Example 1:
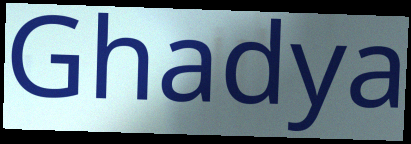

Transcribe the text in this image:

Ghadya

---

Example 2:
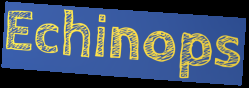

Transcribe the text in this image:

Echinops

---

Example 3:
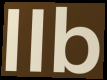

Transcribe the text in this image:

IIb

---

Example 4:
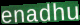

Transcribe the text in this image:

enadhu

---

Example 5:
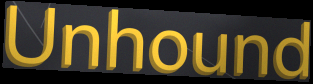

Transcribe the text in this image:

Unhound